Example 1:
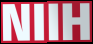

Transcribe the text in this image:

NIIH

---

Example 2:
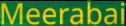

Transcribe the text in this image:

Meerabai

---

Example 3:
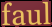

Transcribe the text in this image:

faul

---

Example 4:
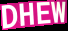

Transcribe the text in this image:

DHEW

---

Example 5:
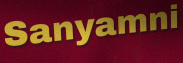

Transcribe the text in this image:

Sanyamni